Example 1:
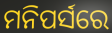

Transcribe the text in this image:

ମନିପର୍ସରେ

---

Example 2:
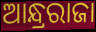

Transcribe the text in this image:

ଆନ୍ଧ୍ରରାଜା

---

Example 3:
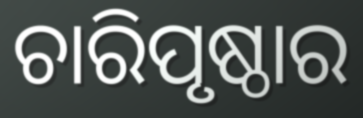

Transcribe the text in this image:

ଚାରିପୃଷ୍ଠାର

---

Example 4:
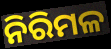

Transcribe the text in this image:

ନିରିମଳ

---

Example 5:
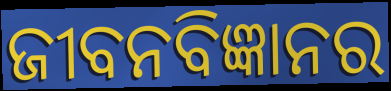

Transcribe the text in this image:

ଜୀବନବିଜ୍ଞାନର